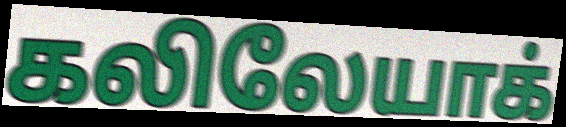
கலிலேயாக்